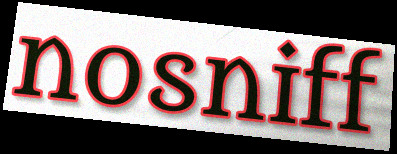
nosniff